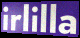
irlilla